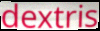
dextris